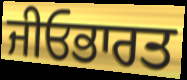
ਜੀਓਭਾਰਤ